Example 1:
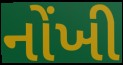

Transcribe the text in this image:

નોંખી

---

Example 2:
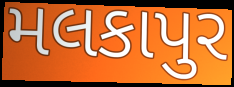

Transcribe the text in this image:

મલકાપુર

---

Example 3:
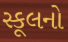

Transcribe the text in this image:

સ્કૂલનો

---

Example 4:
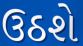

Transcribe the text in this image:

ઉઠશે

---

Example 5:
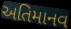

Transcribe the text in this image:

અતિમાનવ